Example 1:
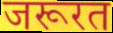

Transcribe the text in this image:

जरूरत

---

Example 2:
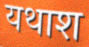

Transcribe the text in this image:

यथाश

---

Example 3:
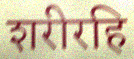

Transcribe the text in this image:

शरीरहि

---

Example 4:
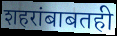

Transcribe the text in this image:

शहरांबाबतही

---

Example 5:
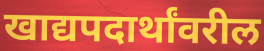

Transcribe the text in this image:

खाद्यपदार्थांवरील